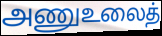
அணுஉலைத்